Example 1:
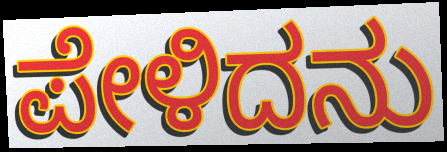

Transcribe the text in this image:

ಪೇಳಿದನು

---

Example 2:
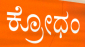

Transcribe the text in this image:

ಕ್ರೋಧಂ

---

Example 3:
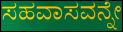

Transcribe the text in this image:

ಸಹವಾಸವನ್ನೇ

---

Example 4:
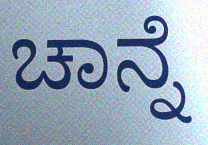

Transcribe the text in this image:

ಚಾನ್ನೆ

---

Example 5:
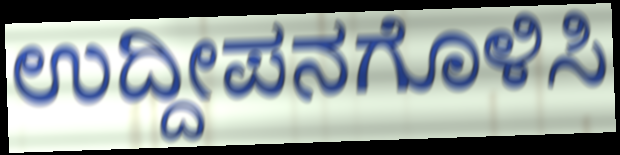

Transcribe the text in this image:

ಉದ್ದೀಪನಗೊಳಿಸಿ